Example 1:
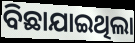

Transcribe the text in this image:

ବିଛାଯାଇଥିଲା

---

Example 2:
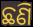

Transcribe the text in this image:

ଛଣି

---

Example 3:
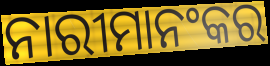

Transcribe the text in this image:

ନାରୀମାନଂକର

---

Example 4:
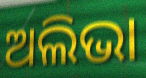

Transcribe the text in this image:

ଅଲିଭା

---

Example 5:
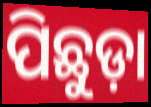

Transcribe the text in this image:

ପିଛୁଡ଼ା